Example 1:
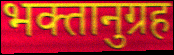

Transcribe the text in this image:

भक्तानुग्रह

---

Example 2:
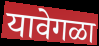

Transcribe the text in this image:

यावेगळा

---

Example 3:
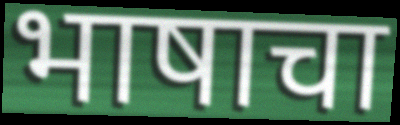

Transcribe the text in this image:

भाषाचा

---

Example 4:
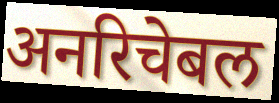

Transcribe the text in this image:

अनरिचेबल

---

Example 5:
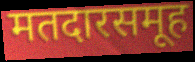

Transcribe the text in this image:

मतदारसमूह